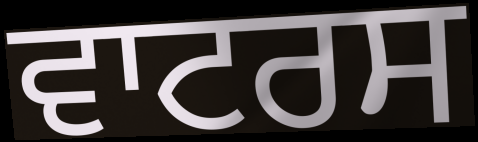
ਵਾਟਰਸ